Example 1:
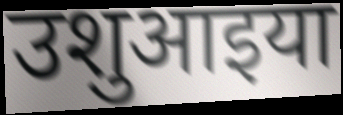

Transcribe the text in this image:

उशुआइया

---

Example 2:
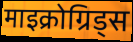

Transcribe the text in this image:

माइक्रोग्रिड्स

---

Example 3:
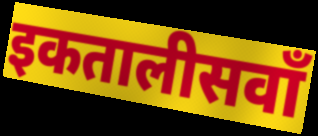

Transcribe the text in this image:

इकतालीसवाँ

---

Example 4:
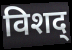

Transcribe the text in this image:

विशद्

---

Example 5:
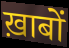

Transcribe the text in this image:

ख़ाबों